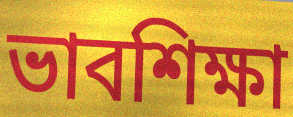
ভাবশিক্ষা